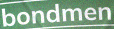
bondmen